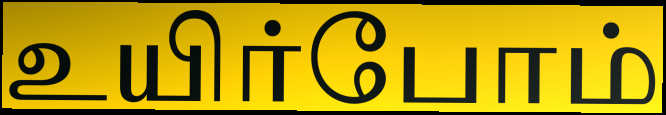
உயிர்போம்